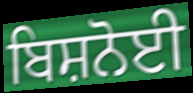
ਬਿਸ਼ਨੋਈ